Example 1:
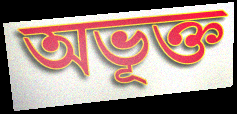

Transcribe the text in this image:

অভূক্ত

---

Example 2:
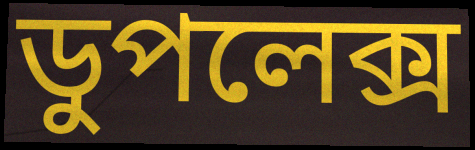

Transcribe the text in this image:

ডুপলেক্স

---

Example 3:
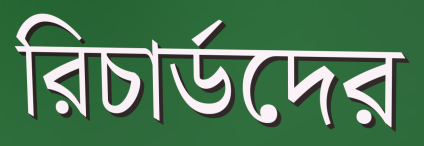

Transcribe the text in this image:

রিচার্ডদের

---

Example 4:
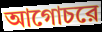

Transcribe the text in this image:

আগোচরে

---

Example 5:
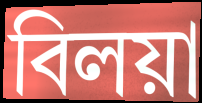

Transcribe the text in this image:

বিলয়া